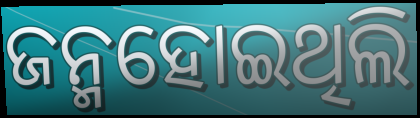
ଜନ୍ମହୋଇଥିଲି